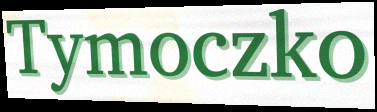
Tymoczko